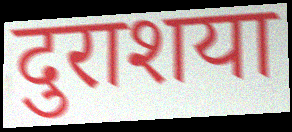
दुराशया